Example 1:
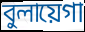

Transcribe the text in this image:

বুলায়েগা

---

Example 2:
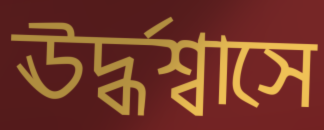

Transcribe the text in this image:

ঊর্দ্ধশ্বাসে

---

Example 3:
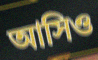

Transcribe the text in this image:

আসিও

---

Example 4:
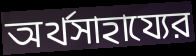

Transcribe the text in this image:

অর্থসাহায্যের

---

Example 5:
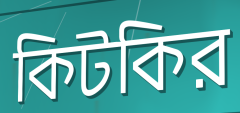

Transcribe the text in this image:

কিটকির